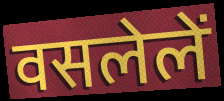
वसलेलें